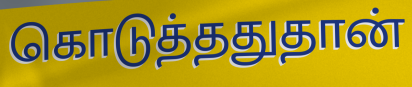
கொடுத்ததுதான்